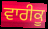
ਵਾਰੀਕੂ